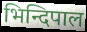
भिन्दिपाल